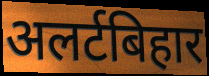
अलर्टबिहार